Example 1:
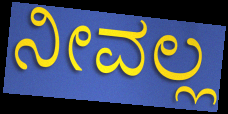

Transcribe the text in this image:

ನೀವಲ್ಲ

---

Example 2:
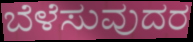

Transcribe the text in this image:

ಬೆಳೆಸುವುದರ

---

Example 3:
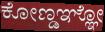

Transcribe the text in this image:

ಕೋಣ್ಡಞ್ಞೋ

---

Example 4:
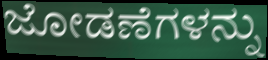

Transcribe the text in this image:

ಜೋಡಣೆಗಳನ್ನು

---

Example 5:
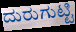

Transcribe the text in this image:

ದುರುಗುಟ್ಟಿ